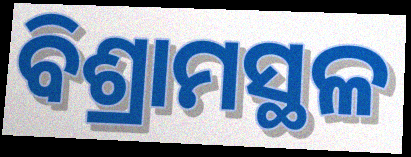
ବିଶ୍ରାମସ୍ଥଳ